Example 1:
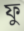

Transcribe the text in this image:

ফু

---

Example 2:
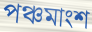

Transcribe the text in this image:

পঞ্চমাংশ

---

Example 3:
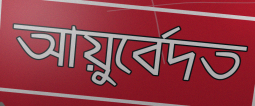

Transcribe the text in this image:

আয়ুৰ্বেদত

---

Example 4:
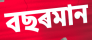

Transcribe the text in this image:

বছৰমান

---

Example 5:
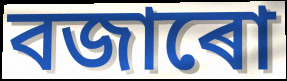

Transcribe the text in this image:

বজাৰো